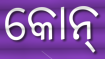
କୋନ୍